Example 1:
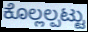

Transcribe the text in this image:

ಕೊಲ್ಲಲ್ಪಟ್ಟು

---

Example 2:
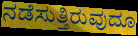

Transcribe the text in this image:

ನಡೆಸುತ್ತಿರುವುದೂ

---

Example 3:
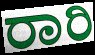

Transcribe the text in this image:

ರಾರಿ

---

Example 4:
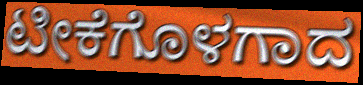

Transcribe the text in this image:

ಟೀಕೆಗೊಳಗಾದ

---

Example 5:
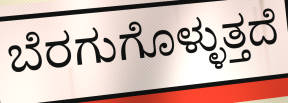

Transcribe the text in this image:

ಬೆರಗುಗೊಳ್ಳುತ್ತದೆ